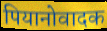
पियानोवादक